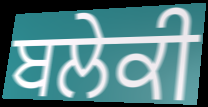
ਬਲੇਕੀ